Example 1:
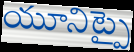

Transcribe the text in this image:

యూనిట్పై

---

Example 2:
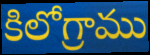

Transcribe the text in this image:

కిలోగ్రాము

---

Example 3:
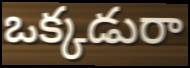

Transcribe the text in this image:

ఒక్కడురా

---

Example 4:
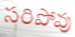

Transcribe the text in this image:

సరిపోవు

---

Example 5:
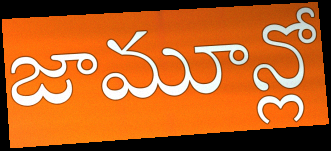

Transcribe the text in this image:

జామూన్లో